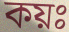
কয়ঃ